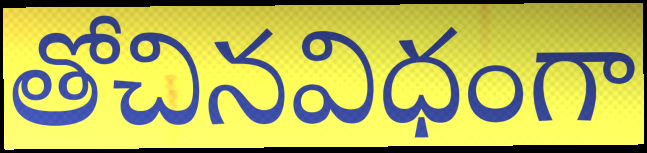
తోచినవిధంగా